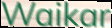
Waikar